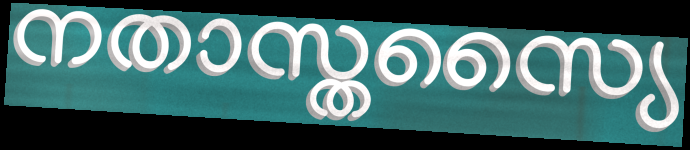
നതാസ്തസ്യൈ